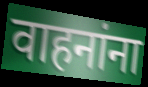
वाहनांना